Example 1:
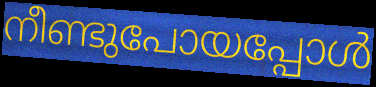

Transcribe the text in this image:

നീണ്ടുപോയപ്പോൾ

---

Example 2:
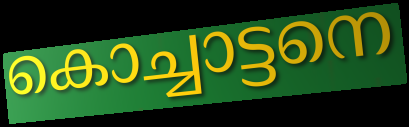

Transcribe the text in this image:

കൊച്ചാട്ടനെ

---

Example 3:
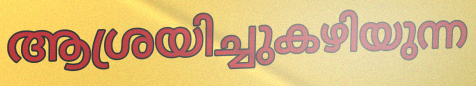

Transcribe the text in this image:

ആശ്രയിച്ചുകഴിയുന്ന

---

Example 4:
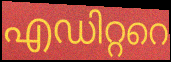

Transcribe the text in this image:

എഡിറ്ററെ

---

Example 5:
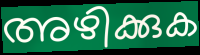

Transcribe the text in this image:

അഴിക്കുക